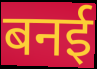
बनई